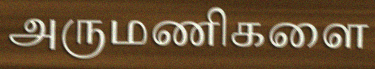
அருமணிகளை